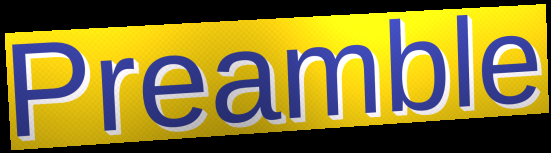
Preamble